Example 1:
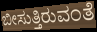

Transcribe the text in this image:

ಬೀಸುತ್ತಿರುವಂತೆ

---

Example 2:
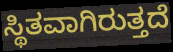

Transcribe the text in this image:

ಸ್ಥಿತವಾಗಿರುತ್ತದೆ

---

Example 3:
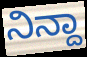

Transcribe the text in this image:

ನಿನ್ದಾ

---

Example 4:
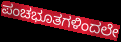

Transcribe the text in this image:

ಪಂಚಭೂತಗಳಿಂದಲೇ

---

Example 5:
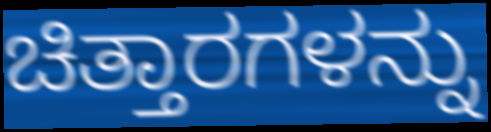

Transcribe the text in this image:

ಚಿತ್ತಾರಗಳನ್ನು